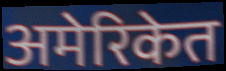
अमेरिकेत